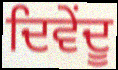
ਦਿਵੇਂਦੂ